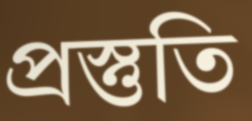
প্রস্তুতি